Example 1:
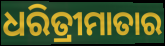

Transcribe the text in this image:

ଧରିତ୍ରୀମାତାର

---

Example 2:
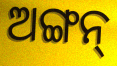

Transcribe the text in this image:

ଅଙ୍ଗନ୍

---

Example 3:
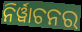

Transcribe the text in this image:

ନିର୍ୱାଚନର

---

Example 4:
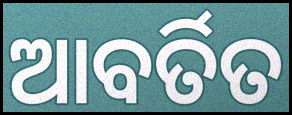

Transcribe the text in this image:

ଆବର୍ତିତ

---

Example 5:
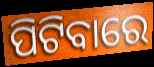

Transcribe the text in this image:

ପିଟିବାରେ